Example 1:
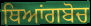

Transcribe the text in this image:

ਥਿਆਂਗਬੋਚ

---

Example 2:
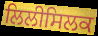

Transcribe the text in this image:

ਲਿਲੀਸਿਲਕ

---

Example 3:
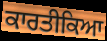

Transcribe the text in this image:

ਕਾਰਤੀਕਿਆ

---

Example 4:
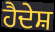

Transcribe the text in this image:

ਹੈਦੇਸ਼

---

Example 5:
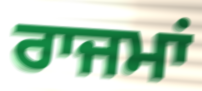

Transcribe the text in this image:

ਰਾਜਮਾਂ